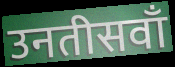
उनतीसवाँ